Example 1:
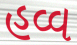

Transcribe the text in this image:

હવ્વ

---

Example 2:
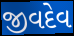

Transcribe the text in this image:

જીવદેવ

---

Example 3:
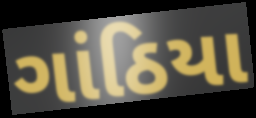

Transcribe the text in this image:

ગાંઠિયા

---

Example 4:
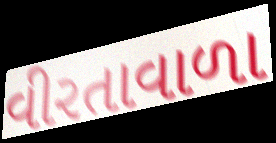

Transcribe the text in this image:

વીરતાવાળા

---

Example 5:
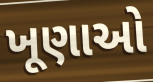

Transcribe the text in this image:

ખૂણાઓ